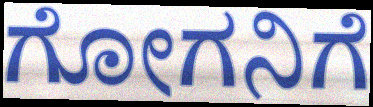
ಗೋಗನಿಗೆ